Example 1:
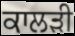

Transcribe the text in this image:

ਕਾਲੜੀ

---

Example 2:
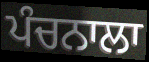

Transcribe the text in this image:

ਪੰਚਨਾਲਾ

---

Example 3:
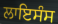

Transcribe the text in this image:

ਲਾਇਸੰਸ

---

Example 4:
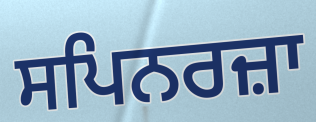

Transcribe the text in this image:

ਸਪਿਨਰਜ਼ਾ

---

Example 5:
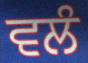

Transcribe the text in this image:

ਵਲੰ